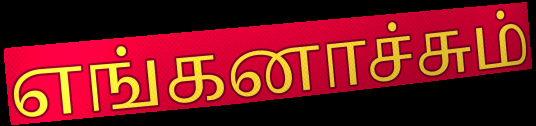
எங்கனாச்சும்